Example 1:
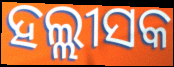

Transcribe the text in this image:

ହଲ୍ଲୀସକ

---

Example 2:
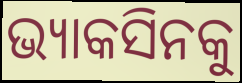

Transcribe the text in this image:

ଭ୍ୟାକସିନକୁ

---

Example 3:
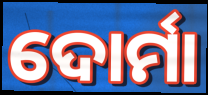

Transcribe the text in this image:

ଦୋର୍ମା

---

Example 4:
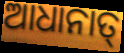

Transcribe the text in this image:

ଆଧାନାତ୍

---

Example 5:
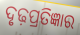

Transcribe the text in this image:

ଦୃଢ଼ପ୍ରତିଜ୍ଞାର